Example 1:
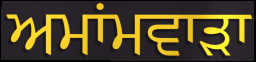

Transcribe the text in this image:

ਅਮਾਂਮਵਾੜਾ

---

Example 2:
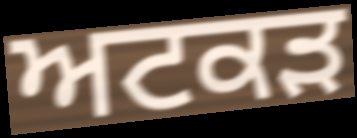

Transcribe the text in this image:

ਅਟਕੜ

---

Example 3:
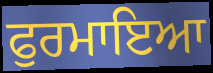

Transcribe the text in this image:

ਫੁਰਮਾਇਆ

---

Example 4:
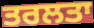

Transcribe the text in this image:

ਤਰਲਤਾ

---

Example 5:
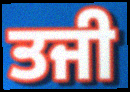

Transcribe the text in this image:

ਤਜੀ